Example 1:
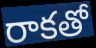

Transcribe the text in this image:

రాకతో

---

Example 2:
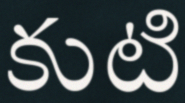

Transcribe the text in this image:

కుటి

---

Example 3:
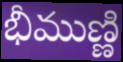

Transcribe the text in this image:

భీముణ్ణి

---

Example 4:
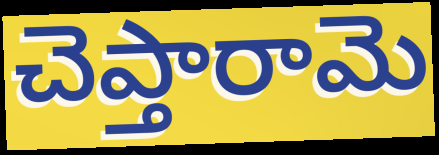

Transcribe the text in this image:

చెప్తారామె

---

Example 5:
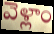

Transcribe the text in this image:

వెళ్లాం